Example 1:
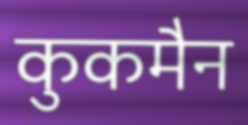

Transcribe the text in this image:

कुकमैन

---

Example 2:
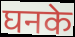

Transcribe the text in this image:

घनके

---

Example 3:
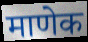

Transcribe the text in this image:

माणेक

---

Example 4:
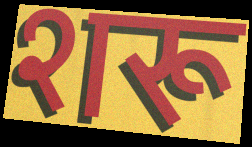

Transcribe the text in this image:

शरू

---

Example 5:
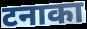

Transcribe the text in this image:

टनाका